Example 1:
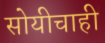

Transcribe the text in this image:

सोयीचाही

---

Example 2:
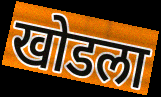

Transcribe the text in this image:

खोडला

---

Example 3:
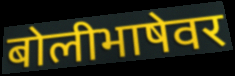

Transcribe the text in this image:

बोलीभाषेवर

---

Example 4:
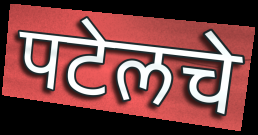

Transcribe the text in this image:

पटेलचे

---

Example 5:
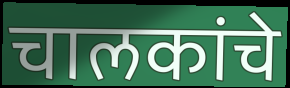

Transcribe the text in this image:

चालकांचे